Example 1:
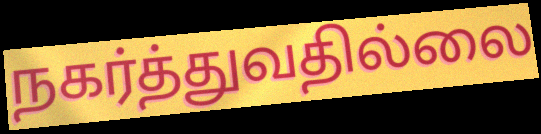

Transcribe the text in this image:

நகர்த்துவதில்லை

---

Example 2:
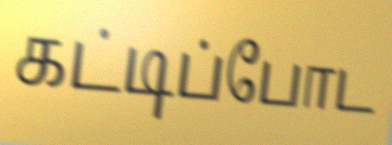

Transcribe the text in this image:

கட்டிப்போட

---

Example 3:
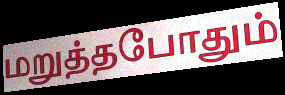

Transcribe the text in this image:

மறுத்தபோதும்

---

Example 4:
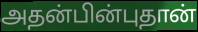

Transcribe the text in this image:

அதன்பின்புதான்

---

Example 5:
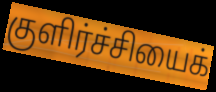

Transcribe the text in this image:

குளிர்ச்சியைக்